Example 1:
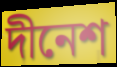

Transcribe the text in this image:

দীনেশ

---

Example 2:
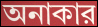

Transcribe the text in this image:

অনাকার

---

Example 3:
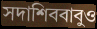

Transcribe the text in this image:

সদাশিববাবুও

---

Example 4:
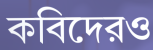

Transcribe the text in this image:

কবিদেরও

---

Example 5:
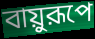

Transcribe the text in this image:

বায়ুরূপে